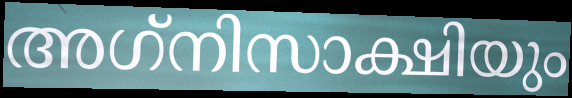
അഗ്‌നിസാക്ഷിയും